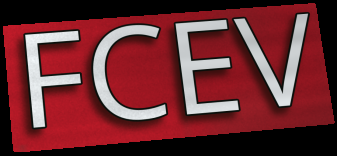
FCEV